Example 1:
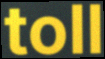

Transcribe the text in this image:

toll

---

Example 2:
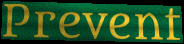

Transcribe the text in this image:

Prevent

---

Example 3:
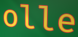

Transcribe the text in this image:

olle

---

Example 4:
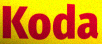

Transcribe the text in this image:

Koda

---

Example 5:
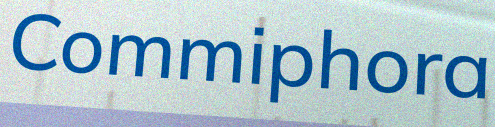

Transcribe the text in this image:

Commiphora